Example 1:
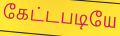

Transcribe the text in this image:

கேட்டபடியே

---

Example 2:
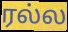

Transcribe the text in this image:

ரல்ல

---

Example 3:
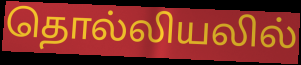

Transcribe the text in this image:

தொல்லியலில்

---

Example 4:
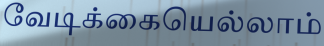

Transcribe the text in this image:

வேடிக்கையெல்லாம்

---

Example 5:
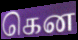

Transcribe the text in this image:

கென